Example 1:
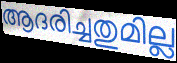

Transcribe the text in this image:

ആദരിച്ചതുമില്ല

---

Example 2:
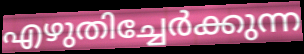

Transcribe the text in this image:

എഴുതിച്ചേർക്കുന്ന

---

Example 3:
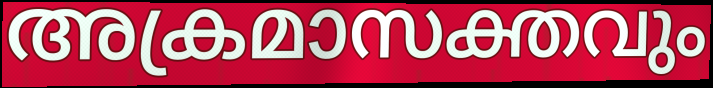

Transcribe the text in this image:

അക്രമാസക്തവും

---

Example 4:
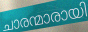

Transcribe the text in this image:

ചാരന്മാരായി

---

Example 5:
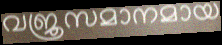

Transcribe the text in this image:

വജ്രസമാനമായ